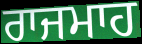
ਰਾਜਮਾਹ